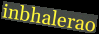
inbhalerao